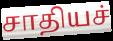
சாதியச்